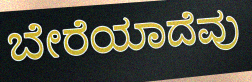
ಬೇರೆಯಾದೆವು